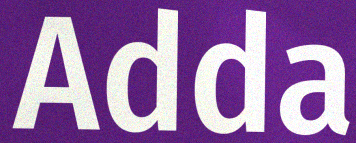
Adda